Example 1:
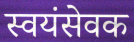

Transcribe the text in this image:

स्वयंसेवक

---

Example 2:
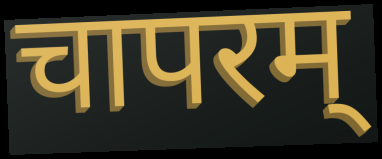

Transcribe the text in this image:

चापरम्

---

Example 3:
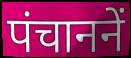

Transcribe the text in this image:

पंचाननें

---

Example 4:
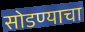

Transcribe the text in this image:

सोडण्याचा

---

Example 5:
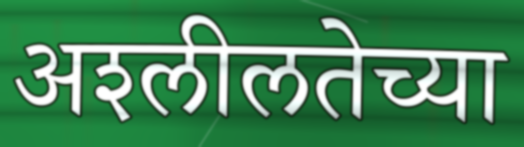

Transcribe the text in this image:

अश्‍लीलतेच्या